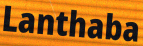
Lanthaba